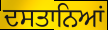
ਦਸਤਾਨਿਆਂ